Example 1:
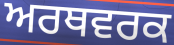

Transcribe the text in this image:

ਅਰਥਵਰਕ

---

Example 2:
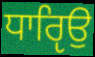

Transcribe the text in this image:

ਧਾਰੵਿਉ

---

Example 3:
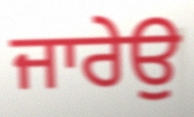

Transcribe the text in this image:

ਜਾਰੇਉ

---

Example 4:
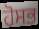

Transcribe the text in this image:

ਹੋਸਭ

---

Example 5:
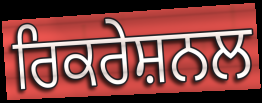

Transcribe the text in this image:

ਰਿਕਰੇਸ਼ਨਲ